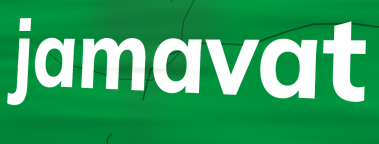
jamavat